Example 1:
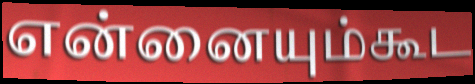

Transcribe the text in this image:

என்னையும்கூட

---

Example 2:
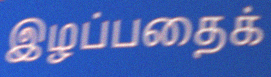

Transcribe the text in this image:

இழப்பதைக்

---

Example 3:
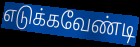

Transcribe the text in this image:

எடுக்கவேண்டி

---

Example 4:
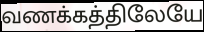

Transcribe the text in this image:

வணக்கத்திலேயே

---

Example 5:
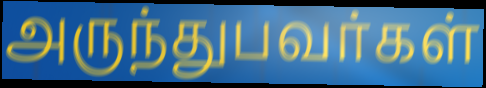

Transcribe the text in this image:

அருந்துபவர்கள்